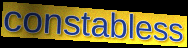
constabless